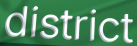
district